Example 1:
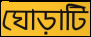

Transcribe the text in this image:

ঘোড়াটি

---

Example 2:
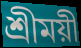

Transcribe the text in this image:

শ্রীময়ী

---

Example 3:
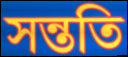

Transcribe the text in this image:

সন্ততি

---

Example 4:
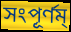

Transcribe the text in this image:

সংপূর্ণম্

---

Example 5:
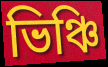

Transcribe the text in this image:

ভিঞ্চি